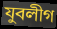
যুবলীগ